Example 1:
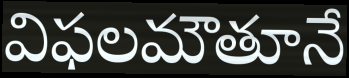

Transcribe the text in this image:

విఫలమౌతూనే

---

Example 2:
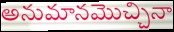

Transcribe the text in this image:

అనుమానమొచ్చినా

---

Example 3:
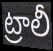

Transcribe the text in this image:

ట్రాలీ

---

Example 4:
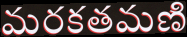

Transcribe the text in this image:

మరకతమణి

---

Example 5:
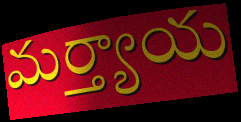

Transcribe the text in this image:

మర్త్యాయ